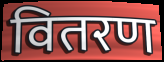
वितरण